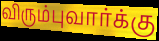
விரும்புவார்க்கு